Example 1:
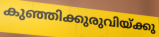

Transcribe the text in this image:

കുഞ്ഞിക്കുരുവിയ്ക്കു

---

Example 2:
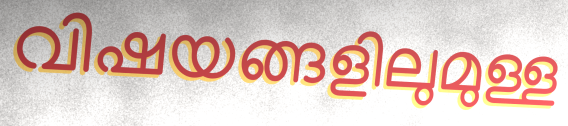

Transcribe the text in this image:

വിഷയങ്ങളിലുമുള്ള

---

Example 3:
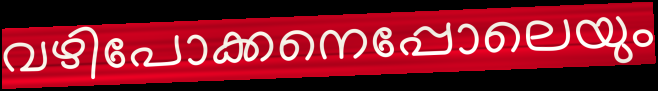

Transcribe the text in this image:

വഴിപോക്കനെപ്പോലെയും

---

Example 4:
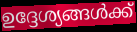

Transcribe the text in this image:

ഉദ്ദേശ്യങ്ങൾക്ക്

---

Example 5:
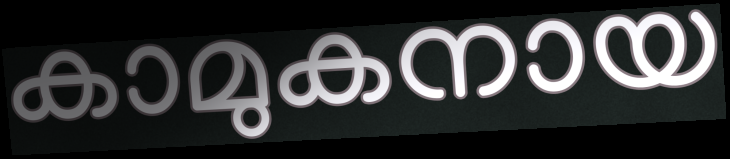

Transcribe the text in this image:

കാമുകനായ